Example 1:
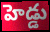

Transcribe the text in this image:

హెడ్డు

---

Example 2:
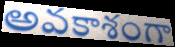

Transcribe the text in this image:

అవకాశంగా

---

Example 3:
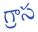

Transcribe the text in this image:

గ్రాస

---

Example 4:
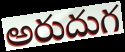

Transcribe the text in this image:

అరుదుగ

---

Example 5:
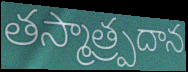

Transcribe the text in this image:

తస్మాత్ర్పదాన